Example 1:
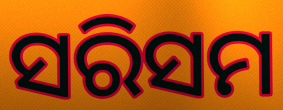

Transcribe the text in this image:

ସରିସମ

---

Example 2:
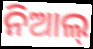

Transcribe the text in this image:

ନିଆଲ୍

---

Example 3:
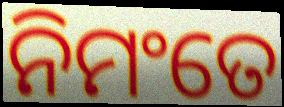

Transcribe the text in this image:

ନିମଂତେ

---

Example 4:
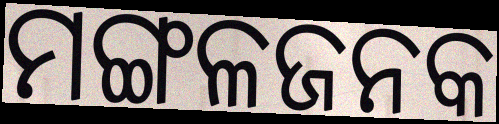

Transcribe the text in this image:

ମଙ୍ଗଳଜନକ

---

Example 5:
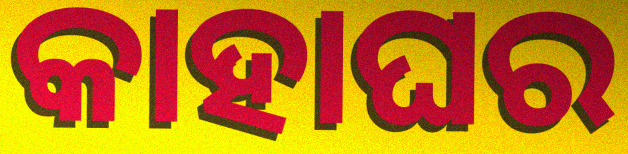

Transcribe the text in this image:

କାହାଘର